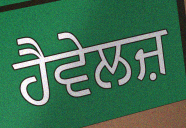
ਹੈਵੇਲਜ਼